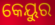
କେୟୁର